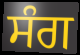
ਸੰਗ